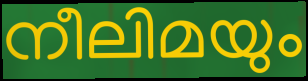
നീലിമയും